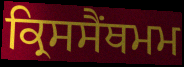
ਕ੍ਰਿਸਸੈਂਥਮਮ